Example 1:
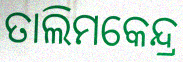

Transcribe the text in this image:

ତାଲିମକେନ୍ଦ୍ର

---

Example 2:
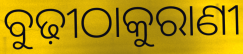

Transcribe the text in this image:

ବୁଢ଼ୀଠାକୁରାଣୀ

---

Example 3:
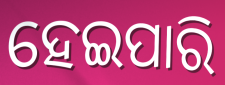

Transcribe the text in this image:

ହେଇପାରି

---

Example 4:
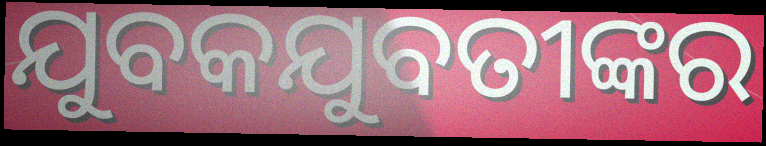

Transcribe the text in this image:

ଯୁବକଯୁବତୀଙ୍କର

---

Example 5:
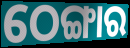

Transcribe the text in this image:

ଠେଙ୍ଗାର